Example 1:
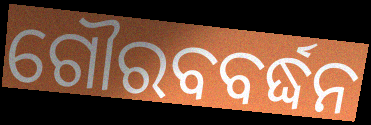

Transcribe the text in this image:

ଗୌରବବର୍ଦ୍ଧନ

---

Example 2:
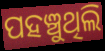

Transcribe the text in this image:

ପହଞ୍ଚୁଥିଲି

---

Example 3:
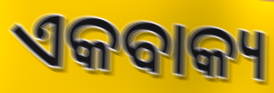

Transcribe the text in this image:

ଏକବାକ୍ୟ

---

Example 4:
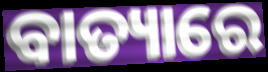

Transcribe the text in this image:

ବାତ୍ୟାରେ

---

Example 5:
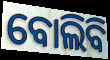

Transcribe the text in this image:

ବୋଲିବି